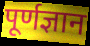
पूर्णज्ञान